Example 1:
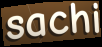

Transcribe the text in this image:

sachi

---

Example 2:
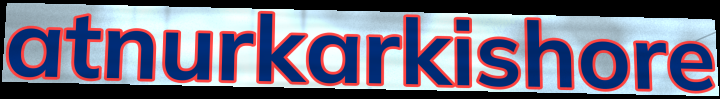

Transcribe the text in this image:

atnurkarkishore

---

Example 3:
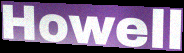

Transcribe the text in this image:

Howell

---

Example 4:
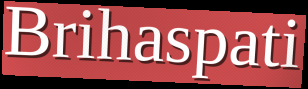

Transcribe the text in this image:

Brihaspati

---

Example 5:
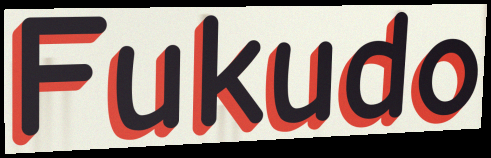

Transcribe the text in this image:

Fukudo